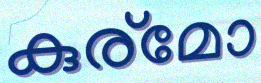
കുര്മോ